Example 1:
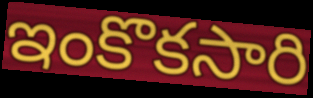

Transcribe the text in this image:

ఇంకొకసారి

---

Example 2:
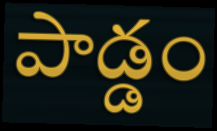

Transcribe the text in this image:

పాడ్డం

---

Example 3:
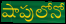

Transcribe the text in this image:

షాపులోనో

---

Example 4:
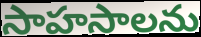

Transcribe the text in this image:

సాహసాలను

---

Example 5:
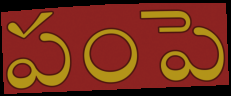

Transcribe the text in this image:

పంపె